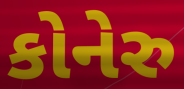
કોનેરુ